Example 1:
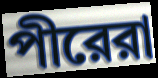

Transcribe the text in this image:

পীরেরা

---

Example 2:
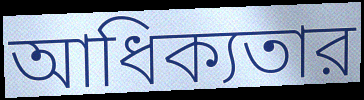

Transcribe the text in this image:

আধিক্যতার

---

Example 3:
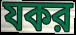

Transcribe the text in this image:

যকর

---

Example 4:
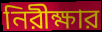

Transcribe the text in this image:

নিরীক্ষার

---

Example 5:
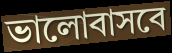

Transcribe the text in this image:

ভালোবাসবে